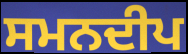
ਸਮਨਦੀਪ